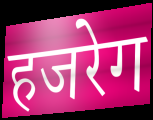
हजरेग